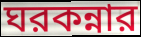
ঘরকন্নার